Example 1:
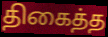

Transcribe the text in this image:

திகைத்த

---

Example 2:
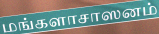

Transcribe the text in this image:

மங்களாசாஸனம்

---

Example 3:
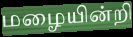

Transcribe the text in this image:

மழையின்றி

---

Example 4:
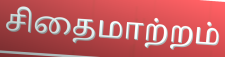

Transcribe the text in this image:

சிதைமாற்றம்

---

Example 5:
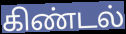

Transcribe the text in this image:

கிண்டல்